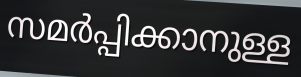
സമർപ്പിക്കാനുള്ള